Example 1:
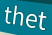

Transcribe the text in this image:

thet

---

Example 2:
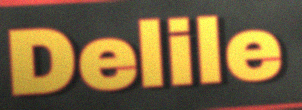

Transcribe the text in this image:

Delile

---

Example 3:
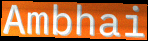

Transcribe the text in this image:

Ambhai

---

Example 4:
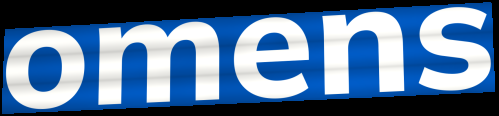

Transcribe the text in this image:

omens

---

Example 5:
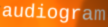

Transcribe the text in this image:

audiogram